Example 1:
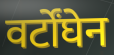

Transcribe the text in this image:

वर्टोंघेन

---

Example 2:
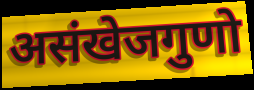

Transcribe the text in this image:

असंखेजगुणो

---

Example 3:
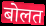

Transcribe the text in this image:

बोलत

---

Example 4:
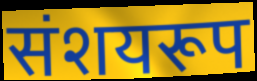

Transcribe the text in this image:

संशयरूप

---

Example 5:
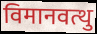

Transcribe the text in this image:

विमानवत्थु